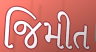
જિમીત